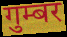
गुम्बर